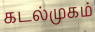
கடல்முகம்